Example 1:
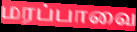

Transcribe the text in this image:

மரப்பாவை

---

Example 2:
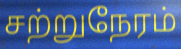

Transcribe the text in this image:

சற்றுநேரம்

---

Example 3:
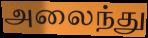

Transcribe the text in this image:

அலைந்து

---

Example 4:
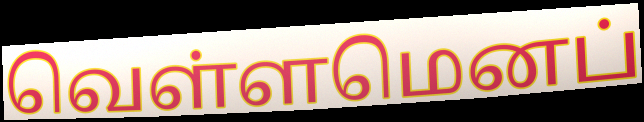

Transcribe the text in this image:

வெள்ளமெனப்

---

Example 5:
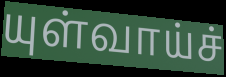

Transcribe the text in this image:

யுள்வாய்ச்